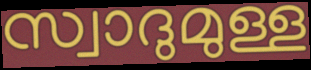
സ്വാദുമുള്ള